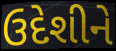
ઉદેશીને